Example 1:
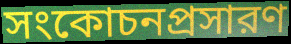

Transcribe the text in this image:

সংকোচনপ্রসারণ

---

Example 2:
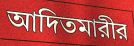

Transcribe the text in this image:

আদিতমারীর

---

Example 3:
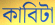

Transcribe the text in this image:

কাবিটা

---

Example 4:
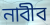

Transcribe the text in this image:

নাবীব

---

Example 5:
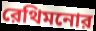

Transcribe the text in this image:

রেথিমনোর